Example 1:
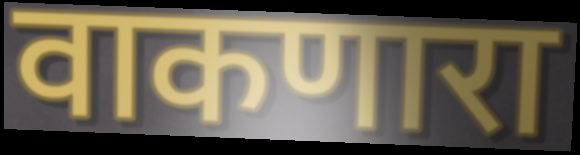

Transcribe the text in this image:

वाकणारा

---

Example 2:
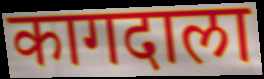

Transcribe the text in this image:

कागदाला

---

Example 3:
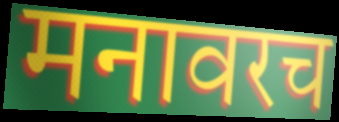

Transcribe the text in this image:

मनावरच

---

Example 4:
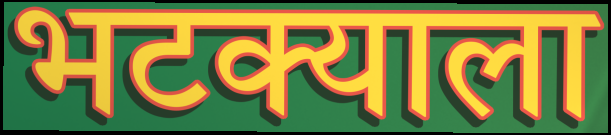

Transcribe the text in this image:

भटक्याला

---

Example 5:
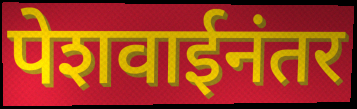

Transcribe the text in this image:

पेशवाईनंतर